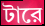
টারে